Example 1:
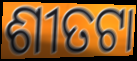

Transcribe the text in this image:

ଶୀତଟା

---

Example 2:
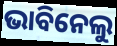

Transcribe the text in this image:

ଭାବିନେଲୁ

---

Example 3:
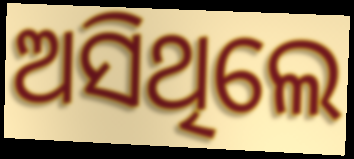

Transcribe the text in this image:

ଅସିଥିଲେ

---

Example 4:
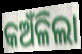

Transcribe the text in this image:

କଅଁଳିଲା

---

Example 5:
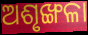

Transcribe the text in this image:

ଅଶୃଙ୍ଖଳା